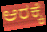
ಆರಕ್ಕೆ